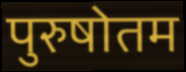
पुरुषोतम